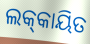
ଲକ୍‌କାୟିତ